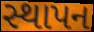
સ્થાપન